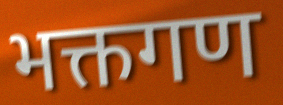
भक्तगण